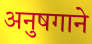
अनुषगाने